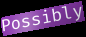
Possibly